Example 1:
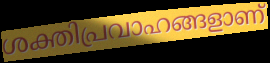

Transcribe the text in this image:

ശക്തിപ്രവാഹങ്ങളാണ്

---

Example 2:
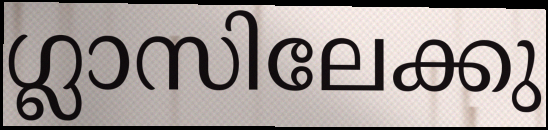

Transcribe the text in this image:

ഗ്ലാസിലേക്കു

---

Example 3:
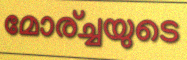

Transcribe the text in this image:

മോര്ച്ചയുടെ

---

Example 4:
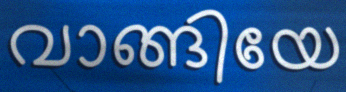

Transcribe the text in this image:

വാങ്ങിയേ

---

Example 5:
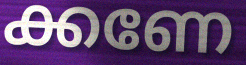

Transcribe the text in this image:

ക്കണേ